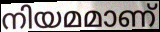
നിയമമാണ്